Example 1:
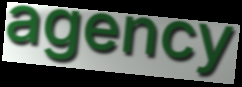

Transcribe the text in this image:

agency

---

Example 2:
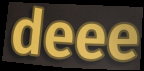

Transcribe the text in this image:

deee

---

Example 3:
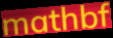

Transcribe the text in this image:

mathbf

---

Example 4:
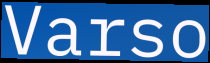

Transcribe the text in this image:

Varso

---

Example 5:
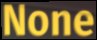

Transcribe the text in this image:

None